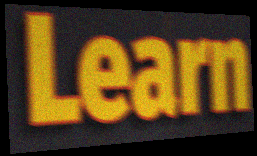
Learn